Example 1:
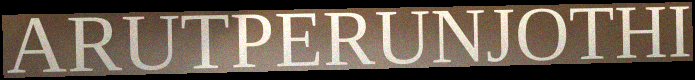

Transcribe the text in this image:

ARUTPERUNJOTHI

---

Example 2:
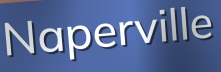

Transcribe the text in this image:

Naperville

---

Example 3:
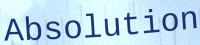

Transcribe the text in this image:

Absolution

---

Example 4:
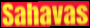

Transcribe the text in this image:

Sahavas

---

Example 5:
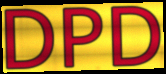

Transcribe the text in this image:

DPD